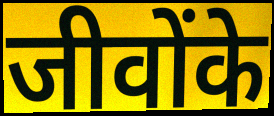
जीवोंके